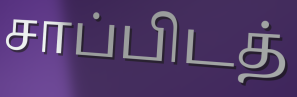
சாப்பிடத்